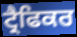
ਟ੍ਰੈਫਿਕਰ